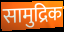
सामुद्रिक